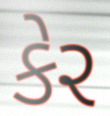
કેર